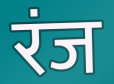
रंज